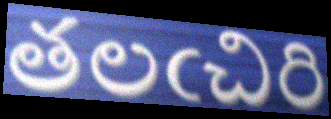
తలఁచిరి